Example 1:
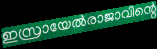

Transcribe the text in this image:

ഇസ്രായേൽരാജാവിന്റെ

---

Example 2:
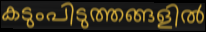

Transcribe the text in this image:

കടുംപിടുത്തങ്ങളിൽ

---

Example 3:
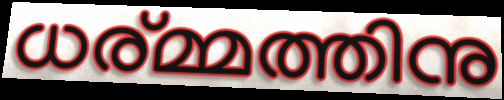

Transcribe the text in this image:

ധര്മ്മത്തിനു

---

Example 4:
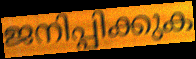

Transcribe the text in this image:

ജനിപ്പിക്കുക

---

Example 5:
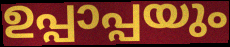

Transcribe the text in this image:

ഉപ്പാപ്പയും